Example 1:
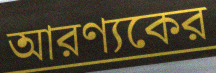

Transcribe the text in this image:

আরণ্যকের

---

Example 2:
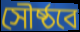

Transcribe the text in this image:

সৌষ্ঠবে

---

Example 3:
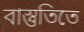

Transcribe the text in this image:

বাস্তুতিতে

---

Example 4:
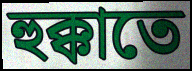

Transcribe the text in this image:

হুক্কাতে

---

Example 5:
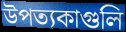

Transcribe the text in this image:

উপত্যকাগুলি